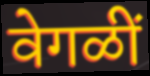
वेगळीं